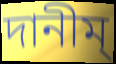
দানীম্